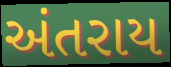
અંતરાય